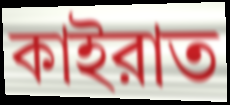
কাইরাত